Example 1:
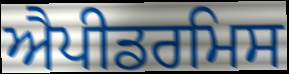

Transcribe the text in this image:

ਐਪੀਡਰਮਿਸ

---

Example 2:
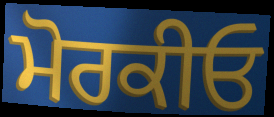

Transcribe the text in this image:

ਮੋਰਕੀਓ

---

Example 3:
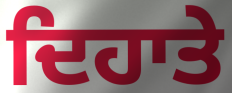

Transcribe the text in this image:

ਦਿਹਾਤੇ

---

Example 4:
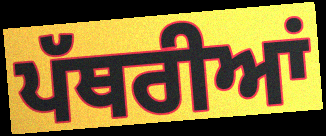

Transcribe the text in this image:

ਪੱਥਰੀਆਂ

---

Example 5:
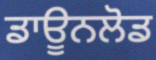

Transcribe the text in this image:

ਡਾਊਨਲੋਡ